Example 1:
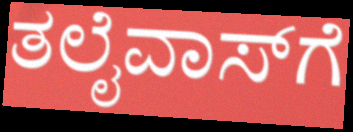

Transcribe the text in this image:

ತಲೈವಾಸ್‌ಗೆ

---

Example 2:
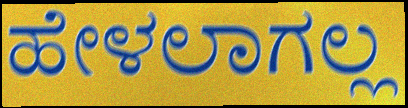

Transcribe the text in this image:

ಹೇಳಲಾಗಲ್ಲ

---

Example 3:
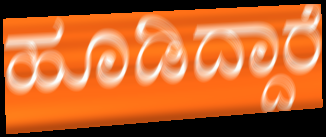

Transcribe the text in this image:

ಹೂಡಿದ್ದಾರೆ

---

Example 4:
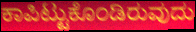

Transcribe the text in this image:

ಕಾಪಿಟ್ಟುಕೊಂಡಿರುವುದು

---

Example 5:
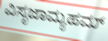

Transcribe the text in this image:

ವಿಸೃಜಾಮ್ಯಹಮ್